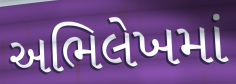
અભિલેખમાં